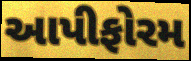
આપીફોરમ